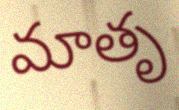
మాతృ